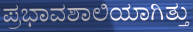
ಪ್ರಭಾವಶಾಲಿಯಾಗಿತ್ತು